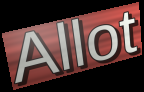
Allot